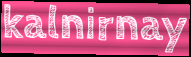
kalnirnay